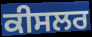
ਕੀਸਲਰ